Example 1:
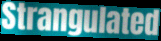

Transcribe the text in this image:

Strangulated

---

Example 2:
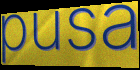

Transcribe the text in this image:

pusa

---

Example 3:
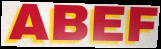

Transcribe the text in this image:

ABEF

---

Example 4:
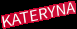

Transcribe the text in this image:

KATERYNA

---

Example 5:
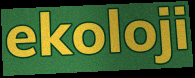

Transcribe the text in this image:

ekoloji